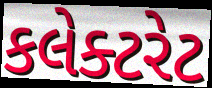
કલેક્ટરેટ